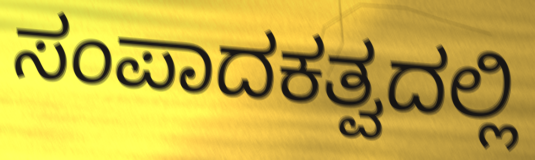
ಸಂಪಾದಕತ್ವದಲ್ಲಿ